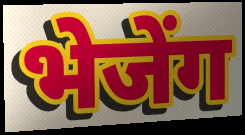
भेजेंग